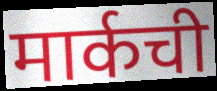
मार्कची